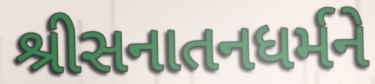
શ્રીસનાતનધર્મને